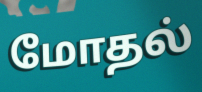
மோதல்